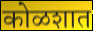
कोळशात